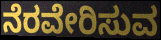
ನೆರವೇರಿಸುವ